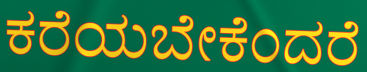
ಕರೆಯಬೇಕೆಂದರೆ